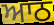
ਆਠ